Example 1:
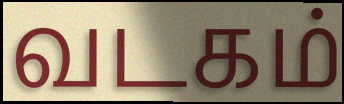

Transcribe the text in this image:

வடகம்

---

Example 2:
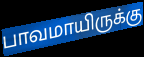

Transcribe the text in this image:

பாவமாயிருக்கு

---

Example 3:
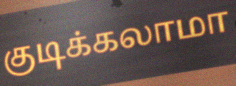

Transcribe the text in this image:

குடிக்கலாமா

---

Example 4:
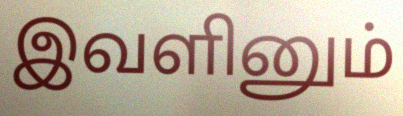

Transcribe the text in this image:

இவளினும்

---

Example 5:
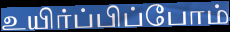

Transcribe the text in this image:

உயிர்ப்பிப்போம்